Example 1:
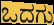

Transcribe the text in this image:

ಒದಗು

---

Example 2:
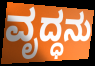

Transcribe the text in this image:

ವೃದ್ಧನು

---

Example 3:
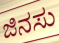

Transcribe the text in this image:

ಜಿನಸು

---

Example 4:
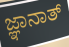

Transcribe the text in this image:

ಜ್ಞಾನಾತ್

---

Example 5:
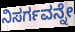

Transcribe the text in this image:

ನಿಸರ್ಗವನ್ನೇ